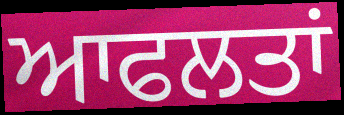
ਆਫਲਤਾਂ